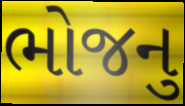
ભોજનુ